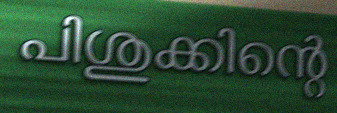
പിശുക്കിന്റെ